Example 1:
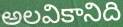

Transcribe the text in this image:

అలవికానిది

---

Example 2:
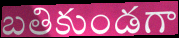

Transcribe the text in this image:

బతికుండగా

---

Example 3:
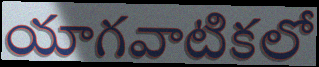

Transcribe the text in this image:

యాగవాటికలో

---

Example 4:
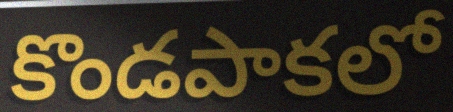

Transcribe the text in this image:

కొండపాకలో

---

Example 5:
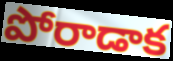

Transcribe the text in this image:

పోరాడాక